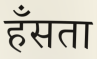
हॅंसता